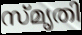
സ്മൃതി